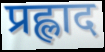
प्रह्लाद